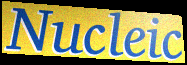
Nucleic